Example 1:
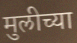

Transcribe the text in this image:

मुलीच्या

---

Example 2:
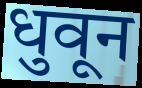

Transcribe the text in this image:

धुवून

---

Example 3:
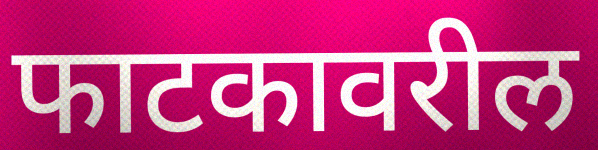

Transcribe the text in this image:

फाटकावरील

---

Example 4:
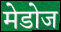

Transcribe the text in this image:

मेडोज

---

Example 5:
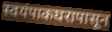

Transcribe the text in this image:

स्वयंपाकघरापासून